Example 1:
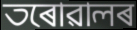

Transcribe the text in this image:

তৰোৱালৰ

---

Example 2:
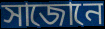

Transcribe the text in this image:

সাজোনে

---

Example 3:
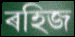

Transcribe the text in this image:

ৰহিজ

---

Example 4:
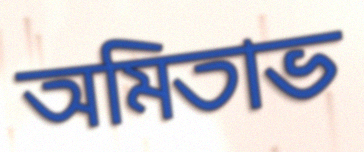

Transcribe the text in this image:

অমিতাভ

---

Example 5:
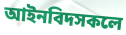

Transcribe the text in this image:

আইনবিদসকলে